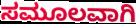
ಸಮೂಲವಾಗಿ